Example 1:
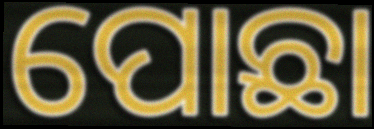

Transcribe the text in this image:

ପୋଛା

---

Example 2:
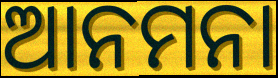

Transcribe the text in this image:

ଆନମନା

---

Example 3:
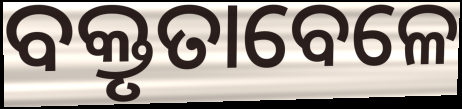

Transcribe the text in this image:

ବକ୍ତୃତାବେଳେ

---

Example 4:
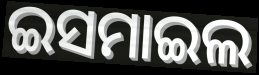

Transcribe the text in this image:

ଇସମାଇଲ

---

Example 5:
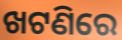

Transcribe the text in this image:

ଖଟଣିରେ